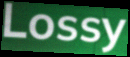
Lossy